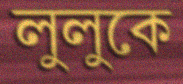
লুলুকে